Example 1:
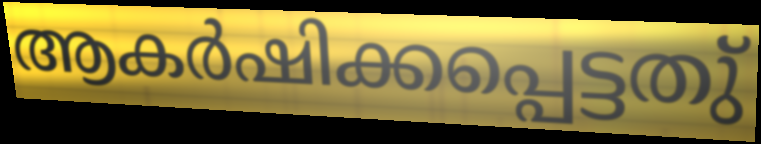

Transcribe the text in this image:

ആകർഷിക്കപ്പെട്ടതു്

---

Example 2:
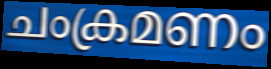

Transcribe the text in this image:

ചംക്രമണം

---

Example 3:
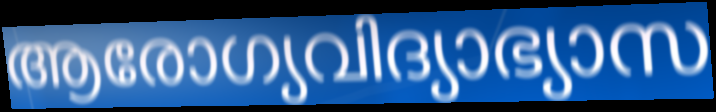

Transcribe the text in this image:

ആരോഗ്യവിദ്യാഭ്യാസ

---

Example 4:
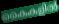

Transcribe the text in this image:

കൈകളിൽ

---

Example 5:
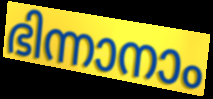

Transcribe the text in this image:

ഭിന്നാനാം